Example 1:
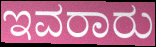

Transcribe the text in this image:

ಇವರಾರು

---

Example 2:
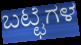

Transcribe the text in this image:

ಬಟ್ಟೆಗಳ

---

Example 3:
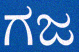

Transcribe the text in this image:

ಗಜ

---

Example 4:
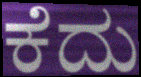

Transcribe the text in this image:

ಕೆದು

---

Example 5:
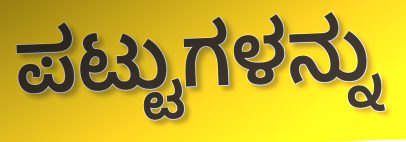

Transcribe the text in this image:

ಪಟ್ಟುಗಳನ್ನು